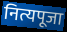
नित्यपूजा